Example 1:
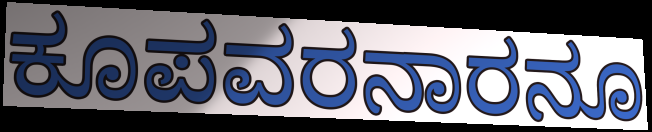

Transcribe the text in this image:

ಕೂಪವರನಾರನೂ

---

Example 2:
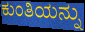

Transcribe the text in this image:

ಕುಂತಿಯನ್ನು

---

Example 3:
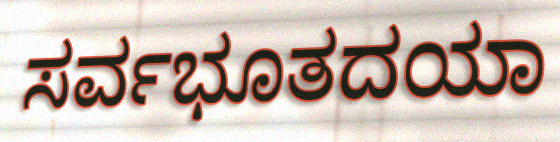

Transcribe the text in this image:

ಸರ್ವಭೂತದಯಾ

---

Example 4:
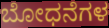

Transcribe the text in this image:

ಬೋಧನೆಗಳ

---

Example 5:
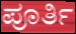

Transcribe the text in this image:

ಪೂರ್ತಿ